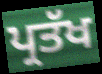
ਪ੍ਰਤੱਖ